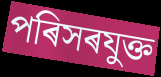
পৰিসৰযুক্ত